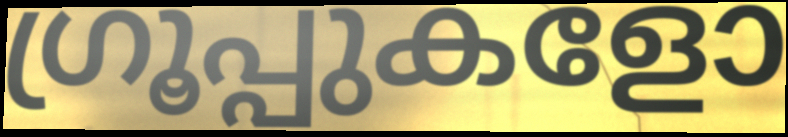
ഗ്രൂപ്പുകളോ